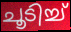
ചൂടിച്ച്